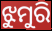
ଝୁମୁରି